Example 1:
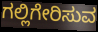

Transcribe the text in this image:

ಗಲ್ಲಿಗೇರಿಸುವ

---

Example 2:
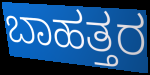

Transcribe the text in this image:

ಬಾಹತ್ತರ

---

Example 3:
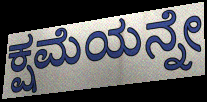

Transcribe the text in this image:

ಕ್ಷಮೆಯನ್ನೇ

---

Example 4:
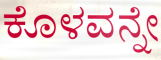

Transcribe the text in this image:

ಕೊಳವನ್ನೇ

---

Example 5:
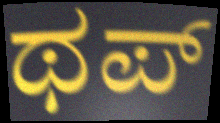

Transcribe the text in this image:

ಥಪ್